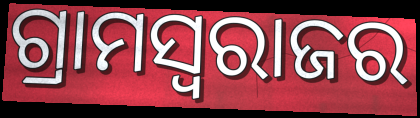
ଗ୍ରାମସ୍ୱରାଜର